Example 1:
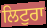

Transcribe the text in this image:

ਲਿਟੁਰਾ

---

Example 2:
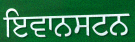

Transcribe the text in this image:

ਇਵਾਨਸਟਨ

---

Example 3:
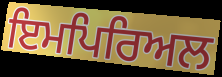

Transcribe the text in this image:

ਇਮਪਿਰਿਅਲ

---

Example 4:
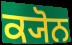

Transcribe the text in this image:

ਕ੍ਯੋਨ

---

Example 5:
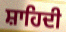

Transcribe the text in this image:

ਸ਼ਾਹਿਦੀ